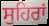
ਸੁਹਿਰਾਂ